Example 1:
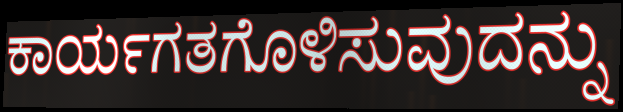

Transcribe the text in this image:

ಕಾರ್ಯಗತಗೊಳಿಸುವುದನ್ನು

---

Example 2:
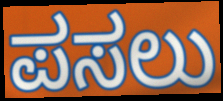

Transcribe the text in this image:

ಪಸಲು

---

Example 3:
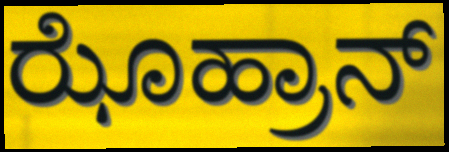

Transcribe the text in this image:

ಝೊಹ್ರಾನ್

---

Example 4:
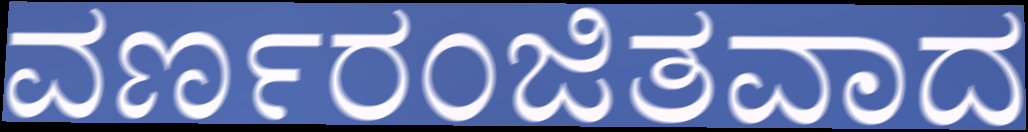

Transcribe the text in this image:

ವರ್ಣರಂಜಿತವಾದ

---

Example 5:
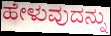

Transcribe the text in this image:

ಹೇಳುವುದನ್ನು